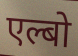
एल्बो